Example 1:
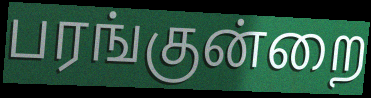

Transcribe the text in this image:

பரங்குன்றை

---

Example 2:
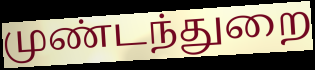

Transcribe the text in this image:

முண்டந்துறை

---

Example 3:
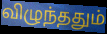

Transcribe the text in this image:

விழுந்ததும்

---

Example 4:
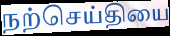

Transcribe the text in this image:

நற்செய்தியை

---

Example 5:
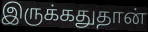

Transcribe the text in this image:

இருக்கதுதான்